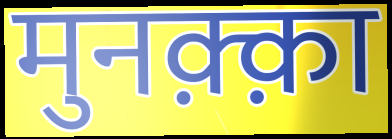
मुनक़्क़ा